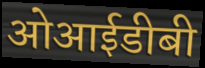
ओआईडीबी